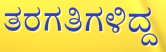
ತರಗತಿಗಳಿದ್ದ